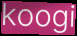
koogi